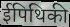
ईपिथिकी